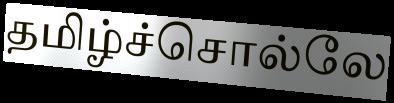
தமிழ்ச்சொல்லே